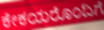
ಕೇಕಯರೊಂದಿಗೆ